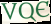
VQE